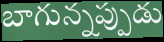
బాగున్నప్పుడు